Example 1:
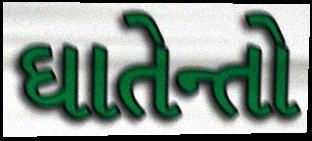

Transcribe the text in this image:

ઘાતેન્તો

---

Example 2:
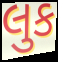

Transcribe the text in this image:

લુક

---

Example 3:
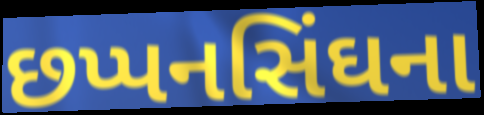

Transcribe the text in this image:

છપ્પનસિંઘના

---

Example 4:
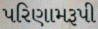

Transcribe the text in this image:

પરિણામરૂપી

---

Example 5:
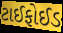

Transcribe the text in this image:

ટાઈફોઈડ